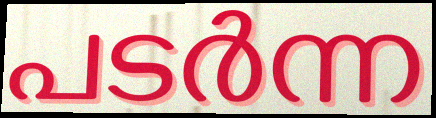
പടർന്ന